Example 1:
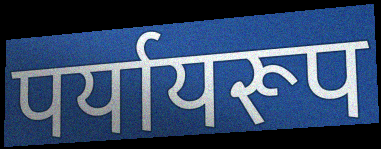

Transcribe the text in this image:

पर्यायरूप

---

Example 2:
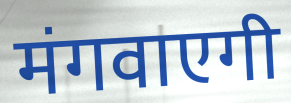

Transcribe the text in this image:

मंगवाएगी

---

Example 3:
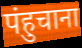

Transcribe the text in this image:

पंहुचाना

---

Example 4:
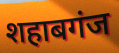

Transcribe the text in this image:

शहाबगंज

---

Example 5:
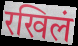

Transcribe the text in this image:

रखिलं